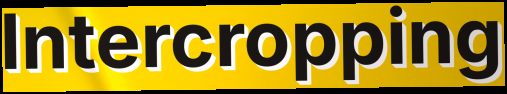
Intercropping